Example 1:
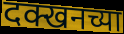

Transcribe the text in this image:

दक्खनच्या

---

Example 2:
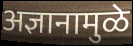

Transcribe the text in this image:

अज्ञानामुळे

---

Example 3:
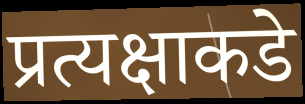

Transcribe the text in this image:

प्रत्यक्षाकडे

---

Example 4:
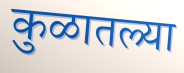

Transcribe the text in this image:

कुळातल्या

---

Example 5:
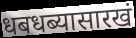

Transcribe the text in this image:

धबधब्यासारखं